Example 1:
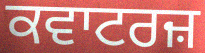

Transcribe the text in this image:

ਕਵਾਟਰਜ਼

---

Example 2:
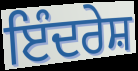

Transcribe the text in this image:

ਇੰਦਰੇਸ਼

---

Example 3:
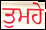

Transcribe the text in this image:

ਤੁਮਹੇ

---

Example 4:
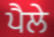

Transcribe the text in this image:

ਪੈਲੇ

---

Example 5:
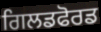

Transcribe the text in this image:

ਗਿਲਡਫੋਰਡ